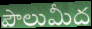
పౌలుమీద